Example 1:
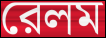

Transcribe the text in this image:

রেলম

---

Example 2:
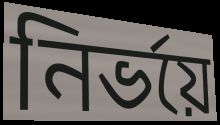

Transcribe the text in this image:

নির্ভয়ে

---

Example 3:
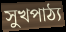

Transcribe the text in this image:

সুখপাঠ্য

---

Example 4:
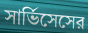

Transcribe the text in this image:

সার্ভিসেসের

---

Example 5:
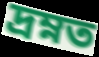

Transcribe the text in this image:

দ্রম্নত